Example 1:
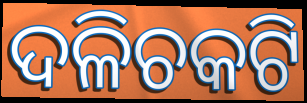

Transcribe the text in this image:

ଦଳିଚକଟି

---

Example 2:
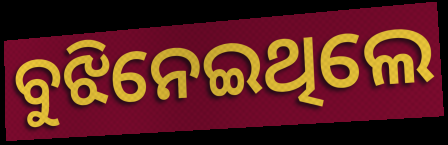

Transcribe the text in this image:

ବୁଝିନେଇଥିଲେ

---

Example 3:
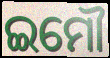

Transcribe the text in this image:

ଇମୌ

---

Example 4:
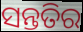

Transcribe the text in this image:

ସନ୍ତତିର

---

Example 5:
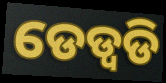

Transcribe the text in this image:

ଡେଡ୍ବଡି